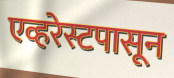
एव्हरेस्टपासून